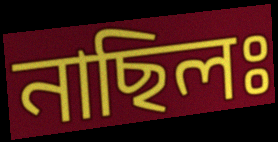
নাছিলঃ